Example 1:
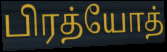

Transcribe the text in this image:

பிரத்யோத்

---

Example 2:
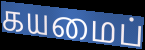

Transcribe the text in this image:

கயமைப்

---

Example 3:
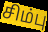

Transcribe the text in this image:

சிம்பு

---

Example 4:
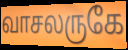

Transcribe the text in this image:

வாசலருகே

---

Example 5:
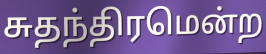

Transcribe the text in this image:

சுதந்திரமென்ற